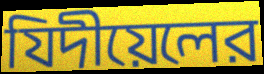
যিদীয়েলের